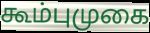
கூம்புமுகை